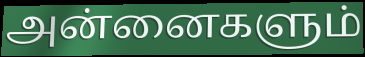
அன்னைகளும்